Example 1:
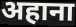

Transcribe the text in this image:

अहाना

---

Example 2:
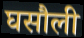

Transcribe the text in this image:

घसौली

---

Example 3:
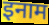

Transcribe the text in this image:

इनाम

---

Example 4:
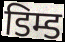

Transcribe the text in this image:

डिम्ड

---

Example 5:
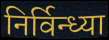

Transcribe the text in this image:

निर्विन्ध्या